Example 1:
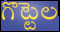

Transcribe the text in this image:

గొట్టెల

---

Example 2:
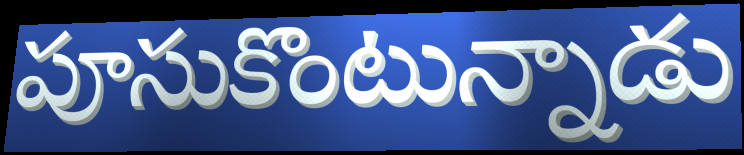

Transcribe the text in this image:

పూసుకొంటున్నాడు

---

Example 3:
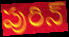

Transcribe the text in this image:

పురిన్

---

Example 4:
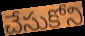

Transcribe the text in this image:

చేసుకోని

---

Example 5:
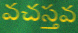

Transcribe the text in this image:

వచస్తవ